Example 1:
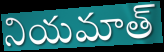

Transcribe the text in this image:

నియమాత్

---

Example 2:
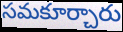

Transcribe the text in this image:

సమకూర్చారు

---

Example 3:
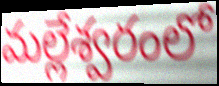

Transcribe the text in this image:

మల్లేశ్వరంలో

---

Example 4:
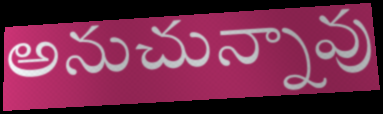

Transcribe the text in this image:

అనుచున్నావు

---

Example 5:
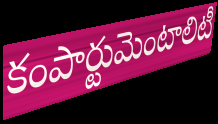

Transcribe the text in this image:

కంపార్టుమెంటాలిటీ